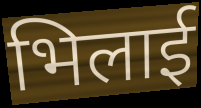
भिलाई